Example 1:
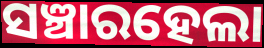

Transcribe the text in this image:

ସଞ୍ଚାରହେଲା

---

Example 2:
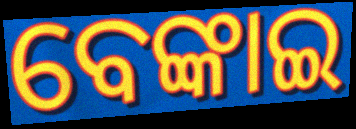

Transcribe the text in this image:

ବେଙ୍କାଇ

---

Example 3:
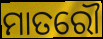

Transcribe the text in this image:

ମାତରୌ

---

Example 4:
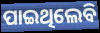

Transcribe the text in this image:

ପାଇଥିଲେବି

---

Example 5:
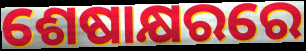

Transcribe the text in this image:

ଶେଷାକ୍ଷରରେ